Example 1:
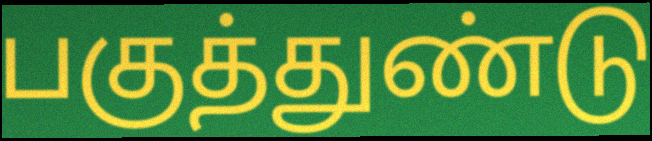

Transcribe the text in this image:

பகுத்துண்டு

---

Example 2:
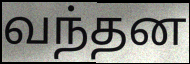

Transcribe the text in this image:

வந்தன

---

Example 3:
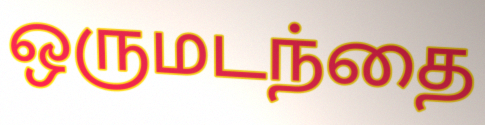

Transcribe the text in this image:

ஒருமடந்தை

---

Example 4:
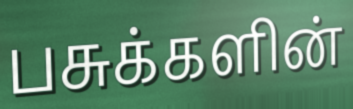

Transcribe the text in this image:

பசுக்களின்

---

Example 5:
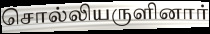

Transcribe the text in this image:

சொல்லியருளினார்